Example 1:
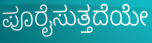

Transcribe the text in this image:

ಪೂರೈಸುತ್ತದೆಯೇ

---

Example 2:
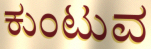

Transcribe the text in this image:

ಕುಂಟುವ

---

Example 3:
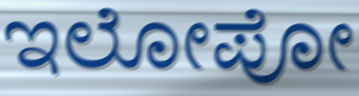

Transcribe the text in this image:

ಇಲೋಪೋ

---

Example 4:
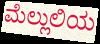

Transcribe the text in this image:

ಮೆಲ್ಲುಲಿಯ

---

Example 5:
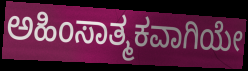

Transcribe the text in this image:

ಅಹಿಂಸಾತ್ಮಕವಾಗಿಯೇ